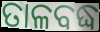
ତାଳବଦ୍ଧ